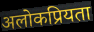
अलोकप्रियता